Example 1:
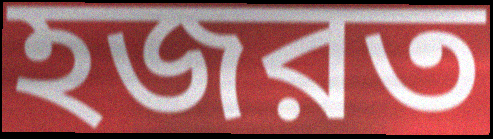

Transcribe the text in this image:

হজরত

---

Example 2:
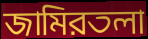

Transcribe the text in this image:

জামিরতলা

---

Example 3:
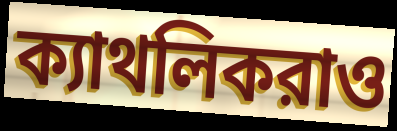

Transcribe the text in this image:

ক্যাথলিকরাও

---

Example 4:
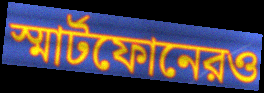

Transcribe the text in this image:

স্মার্টফোনেরও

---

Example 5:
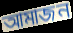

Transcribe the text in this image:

আমাজন